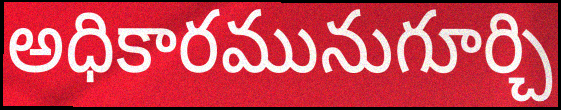
అధికారమునుగూర్చి